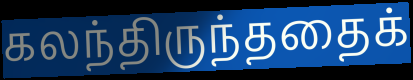
கலந்திருந்ததைக்